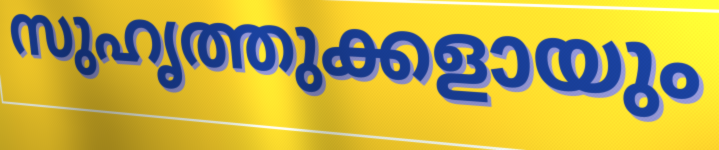
സുഹൃത്തുക്കളായും